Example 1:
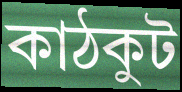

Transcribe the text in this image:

কাঠকুট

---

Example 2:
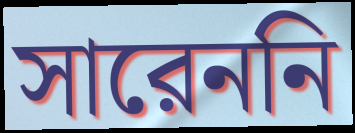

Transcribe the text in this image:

সারেননি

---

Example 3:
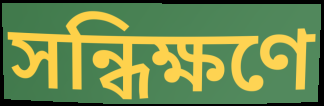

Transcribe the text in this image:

সন্ধিক্ষণে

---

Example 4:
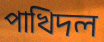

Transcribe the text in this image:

পাখিদল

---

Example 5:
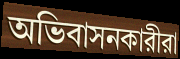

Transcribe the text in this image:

অভিবাসনকারীরা